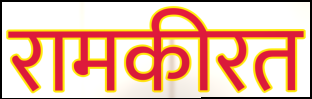
रामकीरत